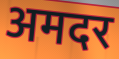
अमदर